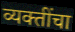
व्यक्तींचा